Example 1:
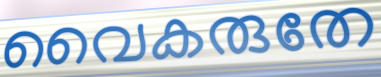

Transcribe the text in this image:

വൈകരുതേ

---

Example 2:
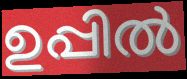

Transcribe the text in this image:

ഉപ്പിൽ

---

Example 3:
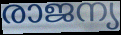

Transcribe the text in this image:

രാജന്യ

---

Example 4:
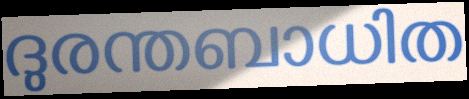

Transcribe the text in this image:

ദുരന്തബാധിത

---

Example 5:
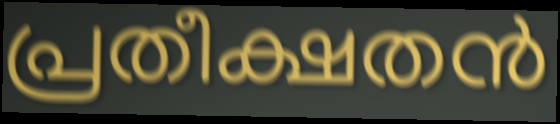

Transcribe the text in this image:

പ്രതീക്ഷതൻ